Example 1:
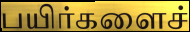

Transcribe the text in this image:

பயிர்களைச்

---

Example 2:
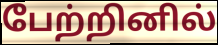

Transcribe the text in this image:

பேற்றினில்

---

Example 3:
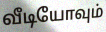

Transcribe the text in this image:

வீடியோவும்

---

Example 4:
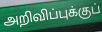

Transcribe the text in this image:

அறிவிப்புக்குப்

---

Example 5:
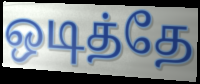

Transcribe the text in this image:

ஒடித்தே